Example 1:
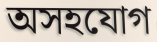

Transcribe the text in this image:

অসহযোগ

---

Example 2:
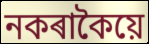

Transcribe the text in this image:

নকৰাকৈয়ে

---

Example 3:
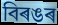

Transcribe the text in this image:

বিৰঙৰ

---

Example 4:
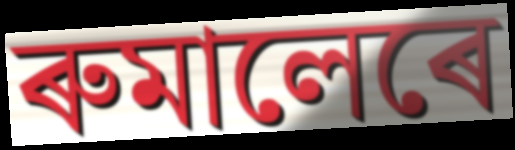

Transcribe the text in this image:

ৰুমালেৰে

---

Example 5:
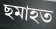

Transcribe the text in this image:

ছমাহত